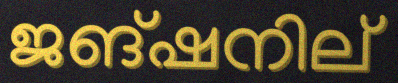
ജങ്ഷനില്